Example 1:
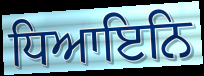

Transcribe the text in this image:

ਧਿਆਇਨਿ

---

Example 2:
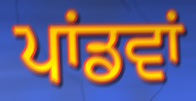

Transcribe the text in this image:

ਪਾਂਡਵਾਂ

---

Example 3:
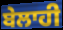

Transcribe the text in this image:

ਬੇਲਾਹੀ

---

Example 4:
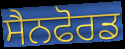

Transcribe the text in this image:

ਸੈਨਫੋਰਡ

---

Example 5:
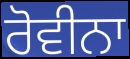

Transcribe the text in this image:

ਰੋਵੀਨਾ